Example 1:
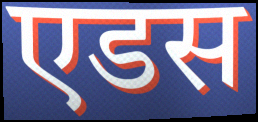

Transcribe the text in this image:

एडस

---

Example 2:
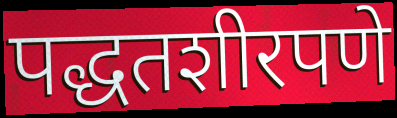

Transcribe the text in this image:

पद्धतशीरपणे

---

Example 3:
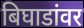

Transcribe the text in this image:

बिघाडांवर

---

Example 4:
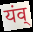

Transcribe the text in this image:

यंव्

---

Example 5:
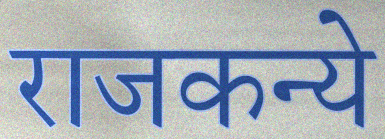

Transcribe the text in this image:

राजकन्ये